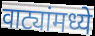
वाट्यांमध्ये